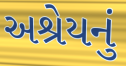
અશ્રેયનું